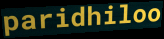
paridhiloo